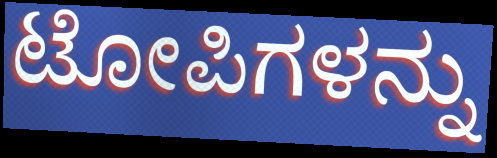
ಟೋಪಿಗಳನ್ನು